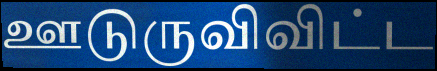
ஊடுருவிவிட்ட